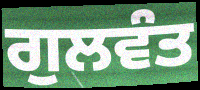
ਗੁਲਵੰਤ